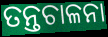
ତନ୍ତଚାଳନା